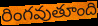
రింగవుతూంది